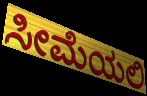
ಸೀಮೆಯಲಿ